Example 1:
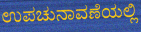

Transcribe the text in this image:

ಉಪಚುನಾವಣೆಯಲ್ಲಿ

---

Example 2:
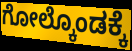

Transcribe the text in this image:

ಗೋಲ್ಕೊಂಡಕ್ಕೆ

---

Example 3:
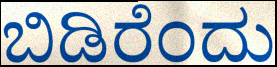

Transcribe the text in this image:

ಬಿಡಿರೆಂದು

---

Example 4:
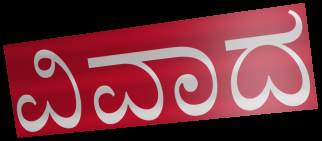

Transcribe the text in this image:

ವಿವಾದ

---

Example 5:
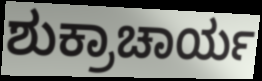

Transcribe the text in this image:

ಶುಕ್ರಾಚಾರ್ಯ